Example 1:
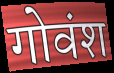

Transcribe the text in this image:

गोवंश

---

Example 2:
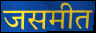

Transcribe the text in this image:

जसमीत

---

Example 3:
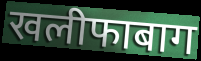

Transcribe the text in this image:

खलीफाबाग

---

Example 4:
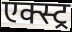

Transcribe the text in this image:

एक्स्ट्र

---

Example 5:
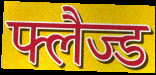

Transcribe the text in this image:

फ्लैज्ड